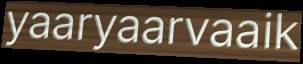
yaaryaarvaaik